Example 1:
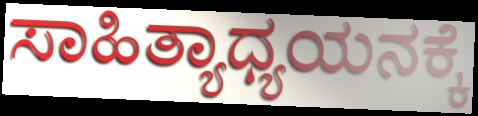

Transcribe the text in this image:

ಸಾಹಿತ್ಯಾಧ್ಯಯನಕ್ಕೆ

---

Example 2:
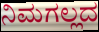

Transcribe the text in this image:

ನಿಮಗಲ್ಲದ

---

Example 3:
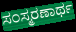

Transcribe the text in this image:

ಸಂಸ್ಮರಣಾರ್ಥ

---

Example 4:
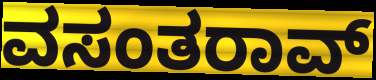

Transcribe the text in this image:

ವಸಂತರಾವ್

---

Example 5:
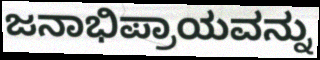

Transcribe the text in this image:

ಜನಾಭಿಪ್ರಾಯವನ್ನು